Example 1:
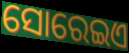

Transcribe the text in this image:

ସୋରେଇଏ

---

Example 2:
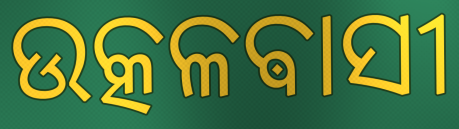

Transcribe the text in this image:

ଉତ୍କଳଵାସୀ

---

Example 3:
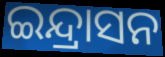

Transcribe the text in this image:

ଇନ୍ଦ୍ରାସନ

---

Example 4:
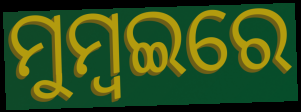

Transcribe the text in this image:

ମୁମ୍ବଇରେ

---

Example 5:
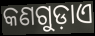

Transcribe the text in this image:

କଣଗୁଡ଼ାଏ